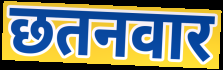
छतनवार